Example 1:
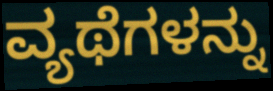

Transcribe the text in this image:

ವ್ಯಥೆಗಳನ್ನು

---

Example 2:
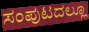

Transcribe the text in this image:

ಸಂಪುಟದಲ್ಲೂ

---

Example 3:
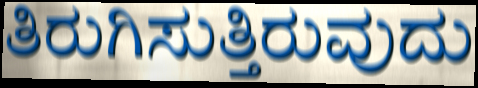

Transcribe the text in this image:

ತಿರುಗಿಸುತ್ತಿರುವುದು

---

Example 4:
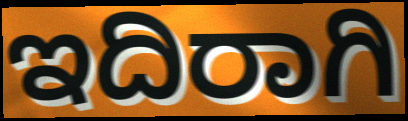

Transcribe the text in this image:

ಇದಿರಾಗಿ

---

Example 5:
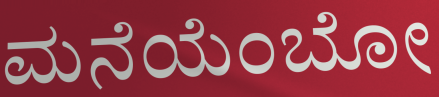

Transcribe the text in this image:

ಮನೆಯೆಂಬೋ